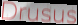
Drusus